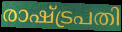
രാഷ്ട്രപതി